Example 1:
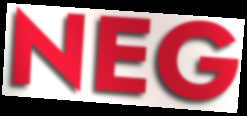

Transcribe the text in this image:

NEG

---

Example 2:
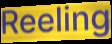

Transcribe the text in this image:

Reeling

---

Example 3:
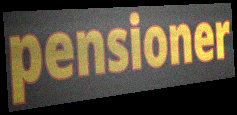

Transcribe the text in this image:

pensioner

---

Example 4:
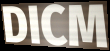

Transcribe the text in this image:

DICM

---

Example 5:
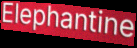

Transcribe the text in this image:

Elephantine